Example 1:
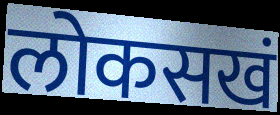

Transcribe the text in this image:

लोकसखं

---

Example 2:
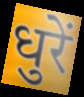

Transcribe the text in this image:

धुरें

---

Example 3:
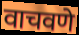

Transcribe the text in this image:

वाचवणे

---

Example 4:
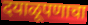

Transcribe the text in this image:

दयाळूपणाचा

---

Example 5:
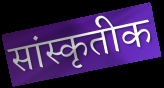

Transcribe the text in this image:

सांस्कृतीक